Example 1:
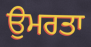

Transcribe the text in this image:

ਉਮਰਤਾ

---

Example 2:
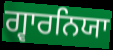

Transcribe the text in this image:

ਗ੍ਵਾਰਨਿਯਾ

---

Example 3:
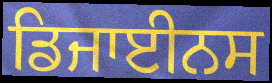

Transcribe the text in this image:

ਡਿਜਾਈਨਸ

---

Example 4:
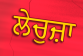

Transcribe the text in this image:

ਲੇਚੁਜ਼ਾ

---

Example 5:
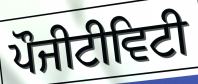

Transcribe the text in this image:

ਪੌਜੀਟੀਵਿਟੀ